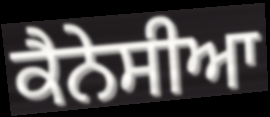
ਕੈਨੇਸੀਆ